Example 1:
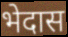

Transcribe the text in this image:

भेदास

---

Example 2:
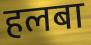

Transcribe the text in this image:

हलबा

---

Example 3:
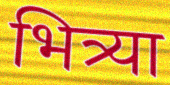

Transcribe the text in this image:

भित्र्या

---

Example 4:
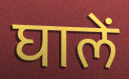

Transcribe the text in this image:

घालें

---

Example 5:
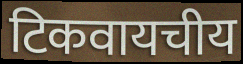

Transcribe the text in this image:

टिकवायचीय